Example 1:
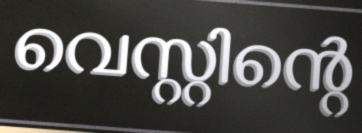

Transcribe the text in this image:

വെസ്റ്റിന്റെ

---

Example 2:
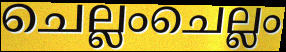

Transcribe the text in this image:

ചെല്ലംചെല്ലം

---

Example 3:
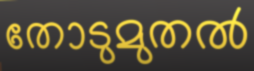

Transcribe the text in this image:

തോടുമുതൽ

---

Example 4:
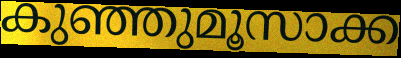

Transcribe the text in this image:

കുഞ്ഞുമൂസാക്ക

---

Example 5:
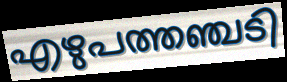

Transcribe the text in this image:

എഴുപത്തഞ്ചടി